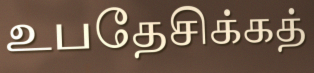
உபதேசிக்கத்